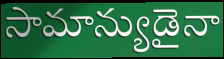
సామాన్యుడైనా